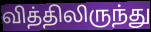
வித்திலிருந்து